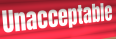
Unacceptable